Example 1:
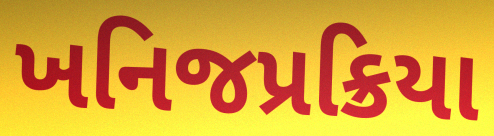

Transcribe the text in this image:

ખનિજપ્રક્રિયા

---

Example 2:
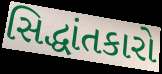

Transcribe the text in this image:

સિદ્ધાંતકારો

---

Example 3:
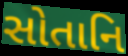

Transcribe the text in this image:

સોતાનિ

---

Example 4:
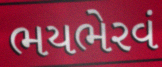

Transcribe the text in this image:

ભયભેરવં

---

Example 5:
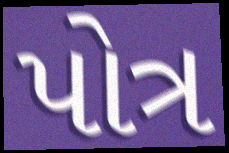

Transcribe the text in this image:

પોત્ર